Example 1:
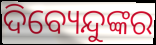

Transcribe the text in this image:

ଦିବ୍ୟେନ୍ଦୁଙ୍କର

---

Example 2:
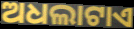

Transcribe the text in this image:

ଅଧଲାଟାଏ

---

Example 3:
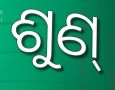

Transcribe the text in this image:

ଶୁଣ୍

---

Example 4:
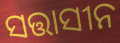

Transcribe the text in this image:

ସତ୍ତାସୀନ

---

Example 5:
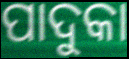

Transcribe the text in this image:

ପାଦୁକା